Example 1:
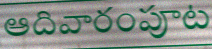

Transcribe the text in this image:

ఆదివారంపూట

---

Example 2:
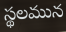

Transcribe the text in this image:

స్థలమున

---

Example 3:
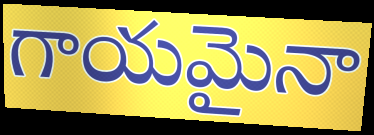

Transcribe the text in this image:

గాయమైనా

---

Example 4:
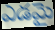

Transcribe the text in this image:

ఎడమై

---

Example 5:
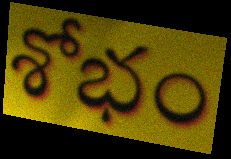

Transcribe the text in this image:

శోభం